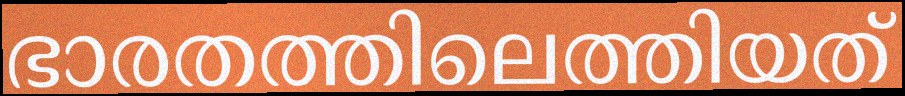
ഭാരതത്തിലെത്തിയത്